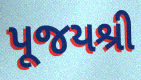
પૂજયશ્રી